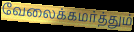
வேலைக்கமர்த்தும்